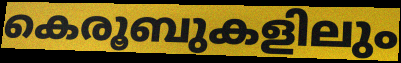
കെരൂബുകളിലും